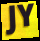
JY